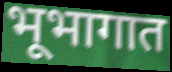
भूभागात